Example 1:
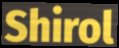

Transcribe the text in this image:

Shirol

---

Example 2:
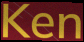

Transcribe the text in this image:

Ken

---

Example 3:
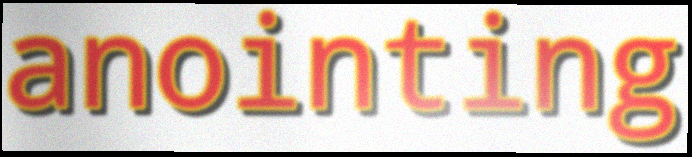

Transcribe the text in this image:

anointing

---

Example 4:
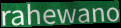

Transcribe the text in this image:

rahewano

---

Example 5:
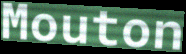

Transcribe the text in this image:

Mouton